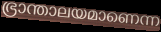
ഭ്രാന്താലയമാണെന്ന